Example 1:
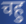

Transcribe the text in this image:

चहु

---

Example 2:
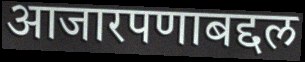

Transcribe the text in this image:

आजारपणाबद्दल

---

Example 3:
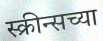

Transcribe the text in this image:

स्क्रीन्सच्या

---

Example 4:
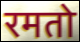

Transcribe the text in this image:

रमतो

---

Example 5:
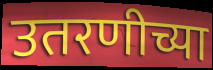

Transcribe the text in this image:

उतरणीच्या